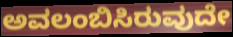
ಅವಲಂಬಿಸಿರುವುದೇ